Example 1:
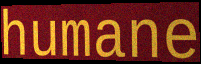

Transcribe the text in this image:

humane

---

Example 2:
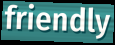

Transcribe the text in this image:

friendly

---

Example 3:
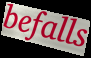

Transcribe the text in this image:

befalls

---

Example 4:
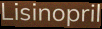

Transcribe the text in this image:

Lisinopril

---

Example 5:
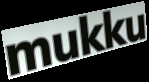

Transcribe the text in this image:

mukku